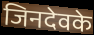
जिनदेवके